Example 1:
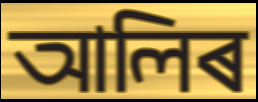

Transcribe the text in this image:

আলিৰ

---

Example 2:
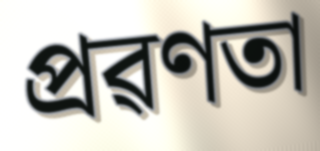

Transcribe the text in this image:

প্ৰৱণতা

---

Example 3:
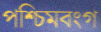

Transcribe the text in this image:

পশ্চিমবংগ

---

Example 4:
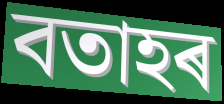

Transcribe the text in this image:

বতাহৰ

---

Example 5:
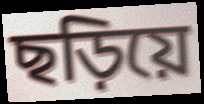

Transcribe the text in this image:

ছড়িয়ে